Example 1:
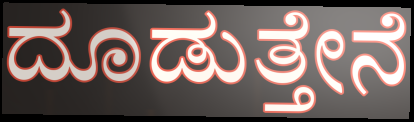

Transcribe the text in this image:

ದೂಡುತ್ತೇನೆ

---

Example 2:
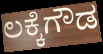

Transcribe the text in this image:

ಲಕ್ಕೆಗೌಡ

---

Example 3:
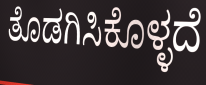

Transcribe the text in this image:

ತೊಡಗಿಸಿಕೊಳ್ಳದೆ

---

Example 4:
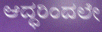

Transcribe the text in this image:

ಆದ್ಧರಿಂದಲೇ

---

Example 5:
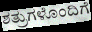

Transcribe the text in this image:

ಶತ್ರುಗಳೊಂದಿಗೆ